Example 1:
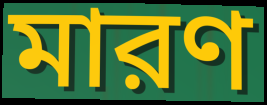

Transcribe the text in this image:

মারণ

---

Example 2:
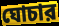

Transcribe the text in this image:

ঘোচার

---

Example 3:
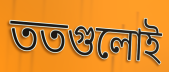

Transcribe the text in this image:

ততগুলোই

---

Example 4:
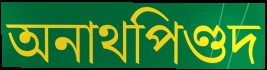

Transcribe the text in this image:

অনাথপিণ্ডদ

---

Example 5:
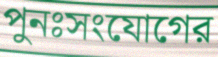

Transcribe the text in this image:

পুনঃসংযোগের